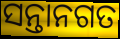
ସନ୍ତାନଗତ